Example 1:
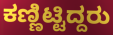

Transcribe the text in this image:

ಕಣ್ಣಿಟ್ಟಿದ್ದರು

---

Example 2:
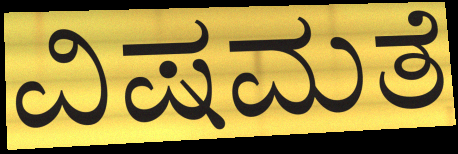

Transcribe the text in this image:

ವಿಷಮತೆ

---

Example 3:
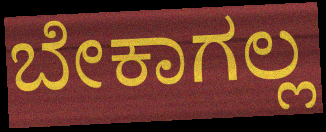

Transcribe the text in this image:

ಬೇಕಾಗಲ್ಲ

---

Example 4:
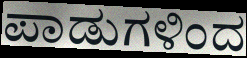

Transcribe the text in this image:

ಪಾಡುಗಳಿಂದ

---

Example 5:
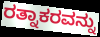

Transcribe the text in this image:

ರತ್ನಾಕರವನ್ನು